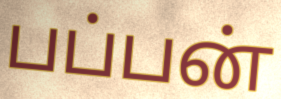
பப்பன்